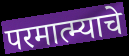
परमात्म्याचे